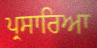
ਪ੍ਰਸਾਰਿਆ